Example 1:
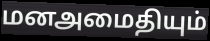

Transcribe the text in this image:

மனஅமைதியும்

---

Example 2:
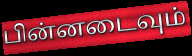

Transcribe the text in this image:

பின்னடைவும்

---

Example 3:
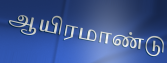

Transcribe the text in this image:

ஆயிரமாண்டு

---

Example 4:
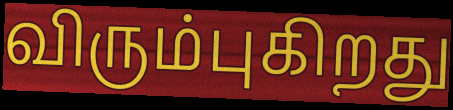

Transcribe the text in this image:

விரும்புகிறது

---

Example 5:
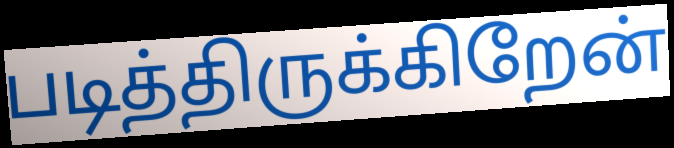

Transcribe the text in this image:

படித்திருக்கிறேன்